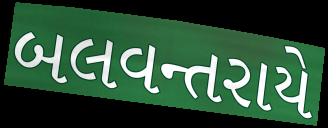
બલવન્તરાયે